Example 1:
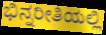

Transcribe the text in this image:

ಭಿನ್ನರೀತಿಯಲ್ಲಿ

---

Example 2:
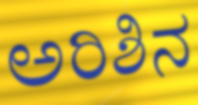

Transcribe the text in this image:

ಅರಿಶಿನ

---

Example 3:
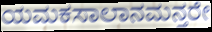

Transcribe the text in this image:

ಯಮಕಸಾಲಾನಮನ್ತರೇ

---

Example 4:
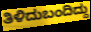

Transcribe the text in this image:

ತಿಳಿದುಬಂದಿದ್ದು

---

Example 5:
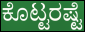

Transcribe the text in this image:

ಕೊಟ್ಟರಷ್ಟೆ